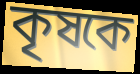
কৃষকে